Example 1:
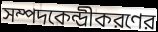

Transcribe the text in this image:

সম্পদকেন্দ্রীকরণের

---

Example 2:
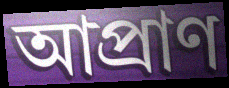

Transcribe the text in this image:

আপ্রাণ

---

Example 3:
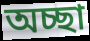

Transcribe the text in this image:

অচ্ছা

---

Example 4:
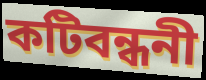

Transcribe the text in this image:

কটিবন্ধনী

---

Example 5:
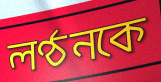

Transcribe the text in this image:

লণ্ঠনকে